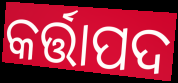
କର୍ତ୍ତାପଦ